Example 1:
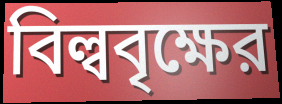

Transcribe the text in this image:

বিল্ববৃক্ষের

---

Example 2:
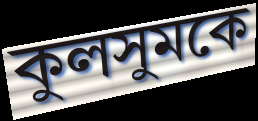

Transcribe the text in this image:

কুলসুমকে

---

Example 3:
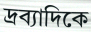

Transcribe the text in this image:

দ্রব্যাদিকে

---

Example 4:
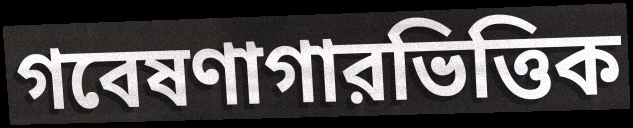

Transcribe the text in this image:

গবেষণাগারভিত্তিক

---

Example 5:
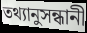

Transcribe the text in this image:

তথ্যানুসন্ধানী